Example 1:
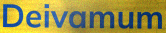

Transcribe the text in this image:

Deivamum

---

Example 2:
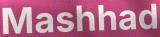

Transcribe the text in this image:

Mashhad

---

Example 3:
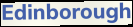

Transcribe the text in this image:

Edinborough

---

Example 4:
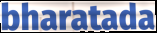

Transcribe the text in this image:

bharatada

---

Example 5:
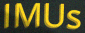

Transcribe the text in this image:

IMUs